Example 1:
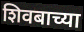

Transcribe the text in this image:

शिवबाच्या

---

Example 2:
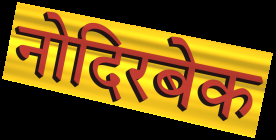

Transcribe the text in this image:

नोदिरबेक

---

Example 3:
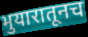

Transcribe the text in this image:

भुयारातूनच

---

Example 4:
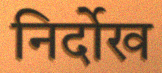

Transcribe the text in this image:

निर्दोख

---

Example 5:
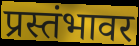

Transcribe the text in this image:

प्रस्तंभावर